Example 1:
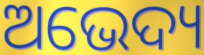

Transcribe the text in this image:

ଅଭେଦ୍ୟ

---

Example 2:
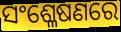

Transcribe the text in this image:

ସଂଶ୍ଳେଷଣରେ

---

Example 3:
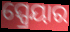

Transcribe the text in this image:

ସ୍ପ୍ରେୟାର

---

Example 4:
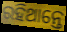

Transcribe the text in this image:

ରହିଥାନ୍ତେ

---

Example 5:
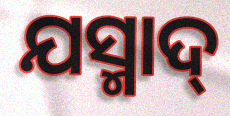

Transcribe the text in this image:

ଯସ୍ମାଦ୍